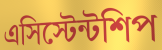
এসিস্টেন্টশিপ